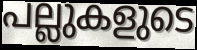
പല്ലുകളുടെ